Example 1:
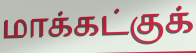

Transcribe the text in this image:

மாக்கட்குக்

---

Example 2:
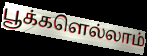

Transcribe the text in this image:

பூக்களெல்லாம்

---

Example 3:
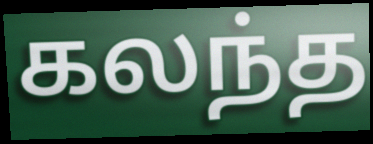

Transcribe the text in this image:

கலந்த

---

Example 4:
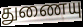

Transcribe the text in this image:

துணையு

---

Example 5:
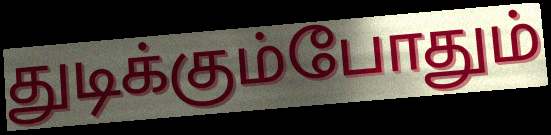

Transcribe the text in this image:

துடிக்கும்போதும்